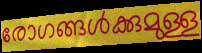
രോഗങ്ങൾക്കുമുള്ള